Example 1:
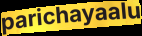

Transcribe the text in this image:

parichayaalu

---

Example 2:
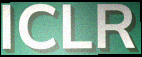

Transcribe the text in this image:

ICLR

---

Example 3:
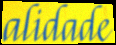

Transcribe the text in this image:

alidade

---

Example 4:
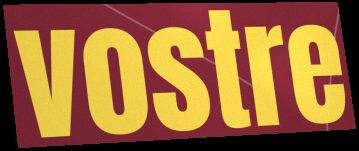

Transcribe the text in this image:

vostre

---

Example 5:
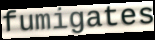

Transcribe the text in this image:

fumigates